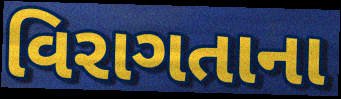
વિરાગતાના